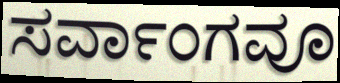
ಸರ್ವಾಂಗವೂ